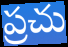
ప్రచు